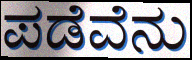
ಪಡೆವೆನು